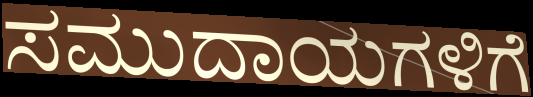
ಸಮುದಾಯಗಳಿಗೆ